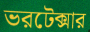
ভরটেক্সার